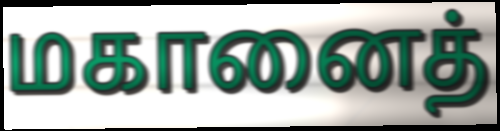
மகானைத்